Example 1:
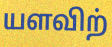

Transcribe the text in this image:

யளவிற்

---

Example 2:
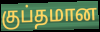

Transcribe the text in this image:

குப்தமான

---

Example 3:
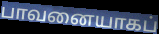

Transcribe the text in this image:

பாவனையாகப்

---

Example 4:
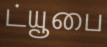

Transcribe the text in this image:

ட்யூபை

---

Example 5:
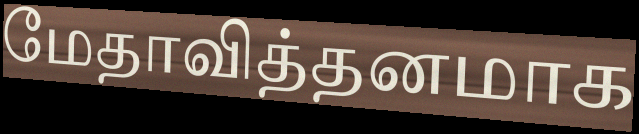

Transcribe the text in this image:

மேதாவித்தனமாக